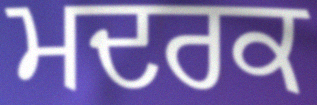
ਮਦਰਕ